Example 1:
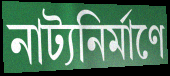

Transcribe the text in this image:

নাট্যনির্মাণে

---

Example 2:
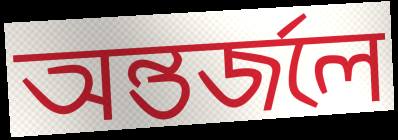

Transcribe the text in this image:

অন্তর্জলে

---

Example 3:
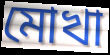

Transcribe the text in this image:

মোখা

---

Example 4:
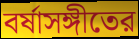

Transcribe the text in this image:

বর্ষাসঙ্গীতের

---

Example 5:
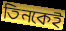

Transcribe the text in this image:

তিনকেই